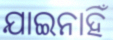
ଯାଇନାହିଁ